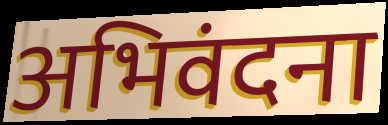
अभिवंदना